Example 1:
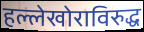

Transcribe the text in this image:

हल्लेखोराविरुद्ध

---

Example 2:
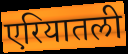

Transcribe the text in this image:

एरियातली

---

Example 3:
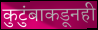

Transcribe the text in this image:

कुटुंबाकडूनही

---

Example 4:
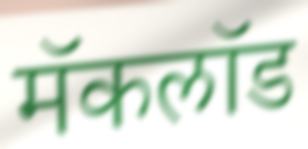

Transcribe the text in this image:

मॅकलॉड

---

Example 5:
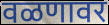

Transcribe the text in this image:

वळणावर